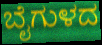
ಬೈಗುಳದ